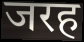
जरह